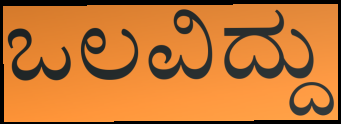
ಒಲವಿದ್ದು